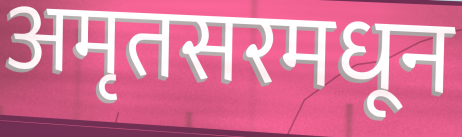
अमृतसरमधून